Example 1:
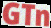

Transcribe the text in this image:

GTn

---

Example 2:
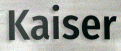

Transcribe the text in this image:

Kaiser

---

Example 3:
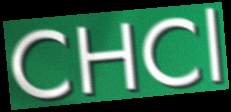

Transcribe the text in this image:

CHCl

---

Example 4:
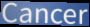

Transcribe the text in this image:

Cancer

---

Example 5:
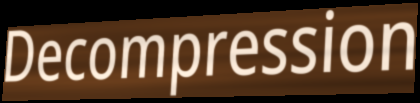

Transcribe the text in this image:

Decompression